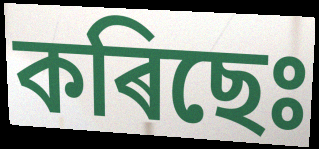
কৰিছেঃ